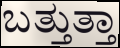
ಬತ್ತುತ್ತಾ